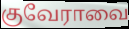
குவேராவை